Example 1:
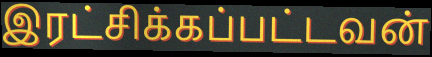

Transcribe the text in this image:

இரட்சிக்கப்பட்டவன்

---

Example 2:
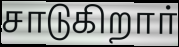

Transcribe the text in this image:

சாடுகிறார்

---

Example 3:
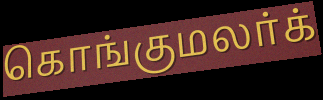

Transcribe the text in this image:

கொங்குமலர்க்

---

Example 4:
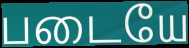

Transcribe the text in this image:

படையே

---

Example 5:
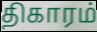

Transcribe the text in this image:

திகாரம்